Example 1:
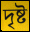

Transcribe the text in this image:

দৃষ্ট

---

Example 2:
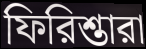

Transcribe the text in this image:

ফিরিশ্তারা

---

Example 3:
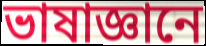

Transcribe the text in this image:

ভাষাজ্ঞানে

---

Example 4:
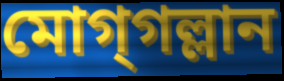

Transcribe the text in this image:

মোগ্‌গল্লান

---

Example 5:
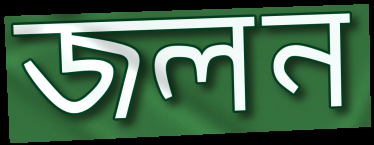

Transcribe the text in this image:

জলন